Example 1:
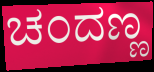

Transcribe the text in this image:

ಚಂದಣ್ಣ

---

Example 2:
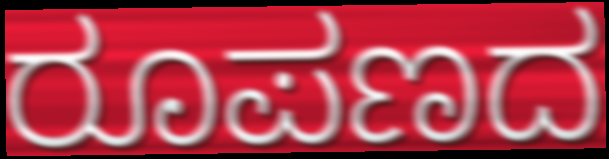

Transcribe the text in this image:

ರೂಪಣದ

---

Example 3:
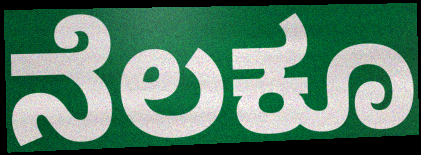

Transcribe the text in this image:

ನೆಲಕೂ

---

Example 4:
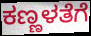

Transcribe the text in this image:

ಕಣ್ಣಳತೆಗೆ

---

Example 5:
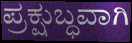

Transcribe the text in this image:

ಪ್ರಕ್ಷುಬ್ಧವಾಗಿ